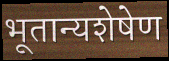
भूतान्यशेषेण